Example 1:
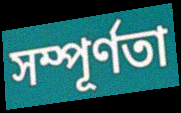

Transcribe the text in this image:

সম্পূর্ণতা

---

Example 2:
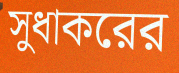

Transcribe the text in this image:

সুধাকরের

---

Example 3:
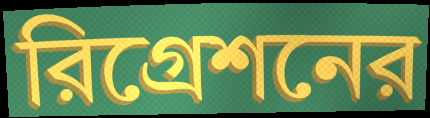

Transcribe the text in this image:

রিগ্রেশনের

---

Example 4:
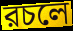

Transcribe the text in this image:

রচলে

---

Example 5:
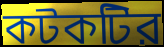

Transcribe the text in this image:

কটকটির